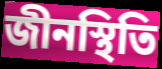
জীনস্থিতি